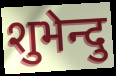
शुभेन्दु